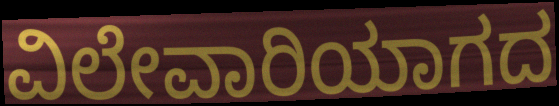
ವಿಲೇವಾರಿಯಾಗದ